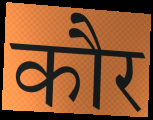
कौर